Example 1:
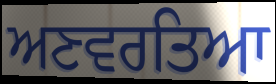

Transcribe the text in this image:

ਅਣਵਰਤਿਆ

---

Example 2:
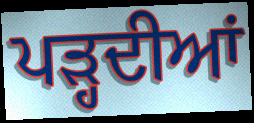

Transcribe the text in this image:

ਪੜ੍ਹਦੀਆਂ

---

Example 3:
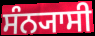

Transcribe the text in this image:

ਸੰਨ੍ਯਾਸੀ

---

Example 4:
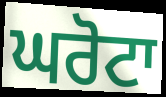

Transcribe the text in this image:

ਘਰੋਟਾ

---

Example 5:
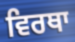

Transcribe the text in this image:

ਵਿਰਥਾ